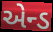
એન્ડ